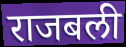
राजबली